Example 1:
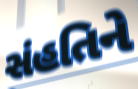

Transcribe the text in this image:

સંહતિને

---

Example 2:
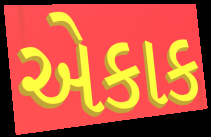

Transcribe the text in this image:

એકાક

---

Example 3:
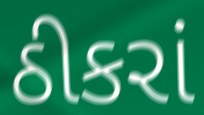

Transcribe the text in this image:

ઠીકરાં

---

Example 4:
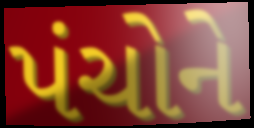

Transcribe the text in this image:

પંચોને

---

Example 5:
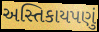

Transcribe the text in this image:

અસ્તિકાયપણું